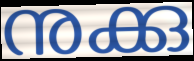
നുക്കു